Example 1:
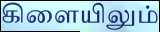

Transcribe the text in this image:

கிளையிலும்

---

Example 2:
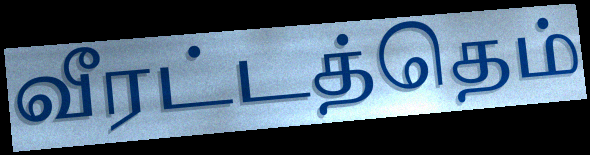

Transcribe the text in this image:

வீரட்டத்தெம்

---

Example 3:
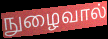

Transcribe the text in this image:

நுழைவால்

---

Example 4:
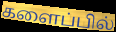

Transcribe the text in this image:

களைப்பில்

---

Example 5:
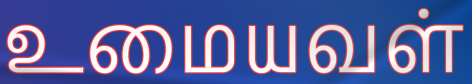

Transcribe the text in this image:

உமையவள்